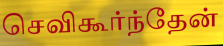
செவிகூர்ந்தேன்